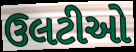
ઉલટીઓ